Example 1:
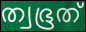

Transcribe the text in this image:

ത്വഭൂത്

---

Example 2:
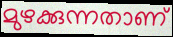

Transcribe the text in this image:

മുഴക്കുന്നതാണ്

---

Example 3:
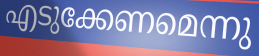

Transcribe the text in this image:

എടുക്കേണമെന്നു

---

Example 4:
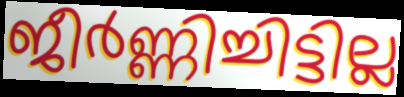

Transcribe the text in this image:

ജീർണ്ണിച്ചിട്ടില്ല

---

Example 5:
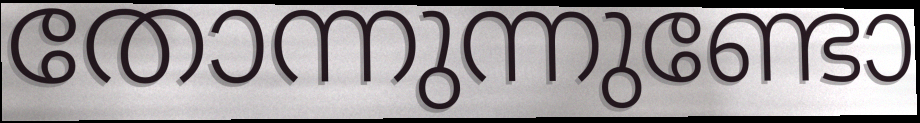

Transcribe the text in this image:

തോന്നുന്നുണ്ടോ